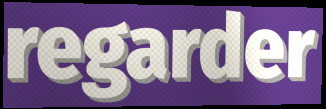
regarder